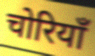
चोरियाँ